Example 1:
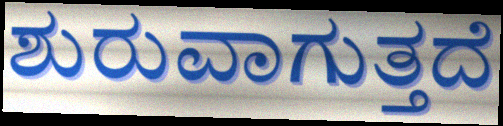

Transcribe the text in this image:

ಶುರುವಾಗುತ್ತದೆ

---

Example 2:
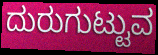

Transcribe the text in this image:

ದುರುಗುಟ್ಟುವ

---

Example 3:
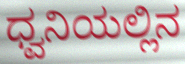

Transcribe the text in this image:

ಧ್ವನಿಯಲ್ಲಿನ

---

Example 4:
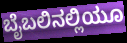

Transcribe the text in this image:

ಬೈಬಲಿನಲ್ಲಿಯೂ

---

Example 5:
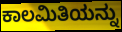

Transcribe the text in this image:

ಕಾಲಮಿತಿಯನ್ನು